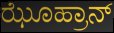
ಝೊಹ್ರಾನ್